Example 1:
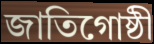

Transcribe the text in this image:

জাতিগোষ্ঠী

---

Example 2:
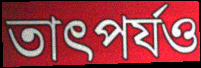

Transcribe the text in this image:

তাৎপর্যও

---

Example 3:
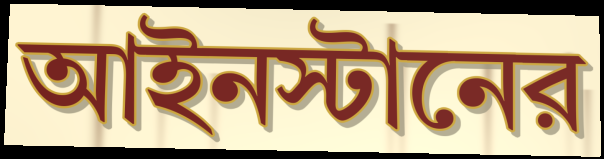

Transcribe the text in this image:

আইনস্টানের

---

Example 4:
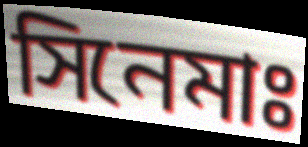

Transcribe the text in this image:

সিনেমাঃ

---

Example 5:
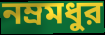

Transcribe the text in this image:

নম্রমধুর